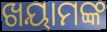
ଖୟାମଙ୍କ